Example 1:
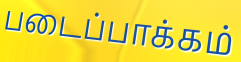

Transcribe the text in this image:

படைப்பாக்கம்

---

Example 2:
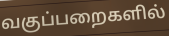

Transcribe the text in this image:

வகுப்பறைகளில்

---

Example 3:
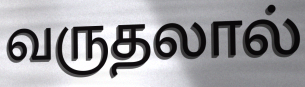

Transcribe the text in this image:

வருதலால்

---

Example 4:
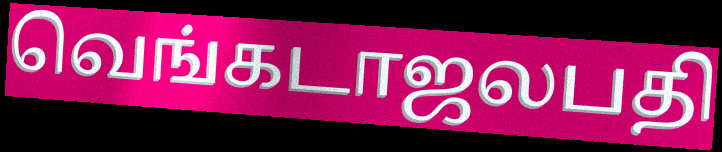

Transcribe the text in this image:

வெங்கடாஜலபதி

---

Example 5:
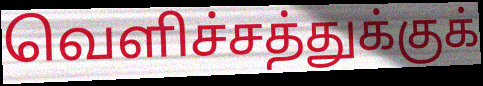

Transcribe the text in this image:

வெளிச்சத்துக்குக்